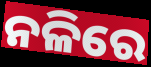
ନଳିରେ